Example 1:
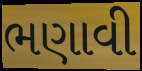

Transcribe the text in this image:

ભણાવી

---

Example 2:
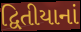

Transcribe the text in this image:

દ્વિતીયાનાં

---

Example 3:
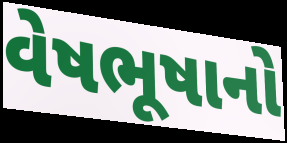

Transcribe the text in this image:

વેષભૂષાનો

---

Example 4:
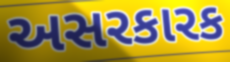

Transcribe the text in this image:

અસરકારક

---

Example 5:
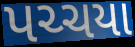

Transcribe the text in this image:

પચ્ચયા